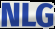
NLG